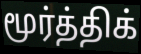
மூர்த்திக்